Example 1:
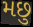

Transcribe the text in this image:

મછુ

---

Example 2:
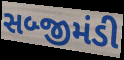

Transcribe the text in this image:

સબ્જીમંડી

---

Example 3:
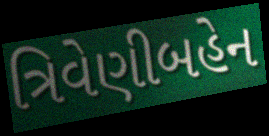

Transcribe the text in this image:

ત્રિવેણીબહેન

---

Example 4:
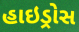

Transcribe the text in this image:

હાઇડ્રોસ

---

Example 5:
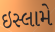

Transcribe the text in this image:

ઇસ્લામે